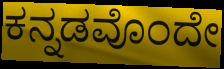
ಕನ್ನಡವೊಂದೇ